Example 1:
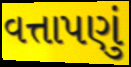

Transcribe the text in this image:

વત્તાપણું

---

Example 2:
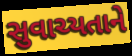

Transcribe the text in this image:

સુવાચ્યતાને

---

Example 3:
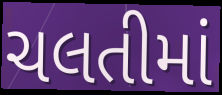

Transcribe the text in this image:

ચલતીમાં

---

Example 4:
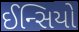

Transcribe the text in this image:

ઈન્સિયો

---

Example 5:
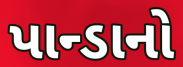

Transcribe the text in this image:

પાન્ડાનો